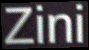
Zini